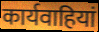
कार्यवाहियां